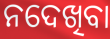
ନଦେଖିବା